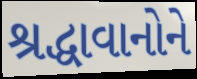
શ્રદ્ધાવાનોને